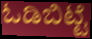
ಓಡಿಬಿಟ್ಟೆ